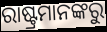
ରାଷ୍ଟ୍ରମାନଙ୍କରୁ